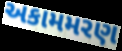
અકામમરણ